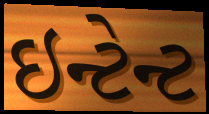
ઇન્ટેન્ટ